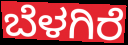
ಬೆಳಗಿರೆ